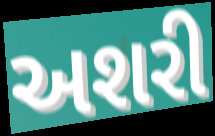
અશરી